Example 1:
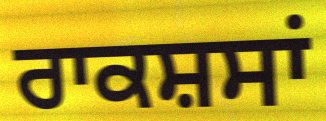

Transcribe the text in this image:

ਰਾਕਸ਼ਸਾਂ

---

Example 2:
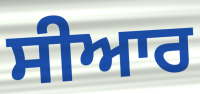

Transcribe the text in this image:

ਸੀਆਰ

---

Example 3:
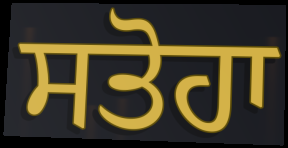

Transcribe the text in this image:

ਸਤੋਹਾ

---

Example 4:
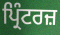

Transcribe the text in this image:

ਪ੍ਰਿੰਟਰਜ਼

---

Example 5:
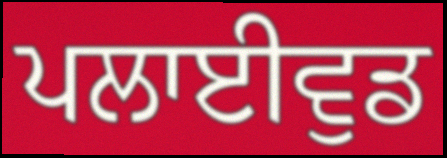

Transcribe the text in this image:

ਪਲਾਈਵੁਡ